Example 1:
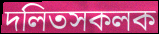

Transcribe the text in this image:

দলিতসকলক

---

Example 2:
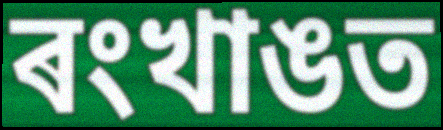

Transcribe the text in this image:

ৰংখাঙত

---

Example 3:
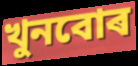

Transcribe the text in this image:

খুনবোৰ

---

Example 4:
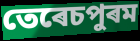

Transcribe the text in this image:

তেৰেচপুৰম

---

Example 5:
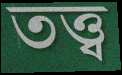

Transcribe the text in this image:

তত্ত্ব